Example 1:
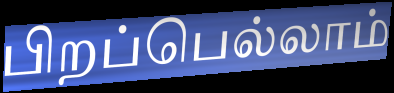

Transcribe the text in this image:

பிறப்பெல்லாம்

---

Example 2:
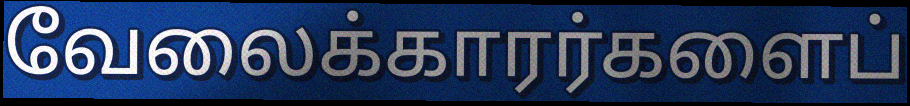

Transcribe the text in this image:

வேலைக்காரர்களைப்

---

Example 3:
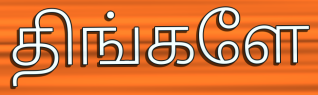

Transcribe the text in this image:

திங்களே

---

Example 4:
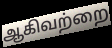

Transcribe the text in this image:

ஆகிவற்றை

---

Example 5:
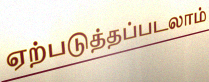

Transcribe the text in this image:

ஏற்படுத்தப்படலாம்